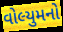
વોલ્યુમનો